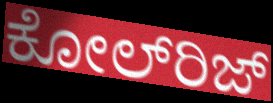
ಕೋಲ್‍ರಿಜ್